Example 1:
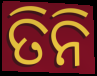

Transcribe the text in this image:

ତିନି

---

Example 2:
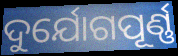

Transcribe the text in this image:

ଦୁର୍ଯୋଗପୂର୍ଣ୍ଣ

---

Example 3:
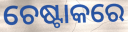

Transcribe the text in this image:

ଚେଷ୍ଟାକରେ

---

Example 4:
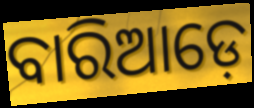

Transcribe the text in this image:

ବାରିଆଡ଼େ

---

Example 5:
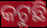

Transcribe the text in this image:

କଟୁଛି